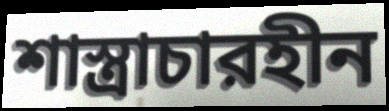
শাস্ত্রাচারহীন